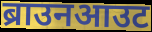
ब्राउनआउट